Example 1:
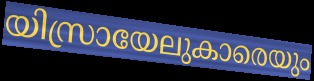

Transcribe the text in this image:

യിസ്രായേലുകാരെയും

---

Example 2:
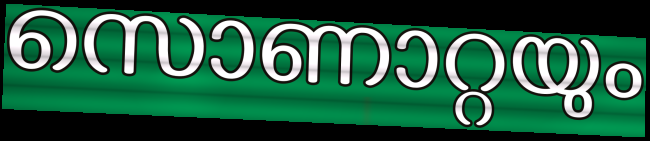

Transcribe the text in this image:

സൊണാറ്റയും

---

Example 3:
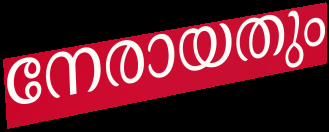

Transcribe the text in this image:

നേരായതും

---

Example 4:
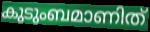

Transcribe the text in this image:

കുടുംബമാണിത്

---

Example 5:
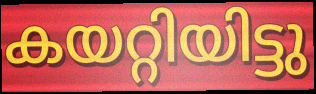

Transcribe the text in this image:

കയറ്റിയിട്ടു